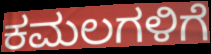
ಕಮಲಗಳಿಗೆ